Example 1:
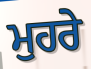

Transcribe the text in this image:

ਮੁਹਰੇ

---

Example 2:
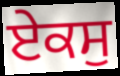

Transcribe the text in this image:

ਏਕਸੁ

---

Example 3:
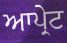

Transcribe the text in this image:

ਆਪ੍ਰੇਟ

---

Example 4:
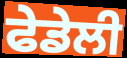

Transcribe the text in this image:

ਫੇਡੇਲੀ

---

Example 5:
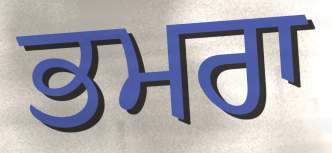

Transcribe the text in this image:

ਭਮਰਾ